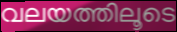
വലയത്തിലൂടെ